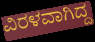
ವಿರಳವಾಗಿದ್ದ